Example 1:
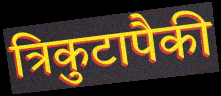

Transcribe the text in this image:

त्रिकुटापैकी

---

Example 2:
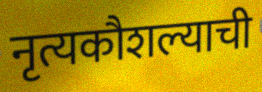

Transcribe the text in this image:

नृत्यकौशल्याची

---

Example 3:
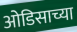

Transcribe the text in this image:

ओडिसाच्या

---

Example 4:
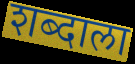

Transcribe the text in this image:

शब्दाला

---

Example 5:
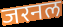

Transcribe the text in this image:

जरनल